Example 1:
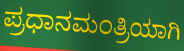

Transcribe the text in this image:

ಪ್ರಧಾನಮಂತ್ರಿಯಾಗಿ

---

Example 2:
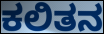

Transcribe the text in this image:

ಕಲಿತನ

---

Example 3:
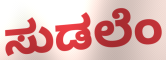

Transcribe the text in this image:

ಸುಡಲೆಂ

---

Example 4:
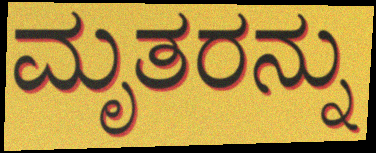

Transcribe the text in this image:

ಮೃತರನ್ನು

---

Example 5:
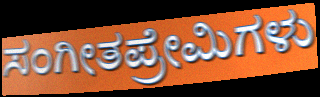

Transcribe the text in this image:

ಸಂಗೀತಪ್ರೇಮಿಗಳು